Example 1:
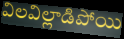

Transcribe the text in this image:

విలవిల్లాడిపోయి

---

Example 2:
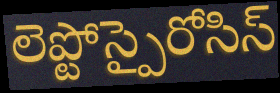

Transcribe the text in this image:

లెప్టోస్పైరోసిస్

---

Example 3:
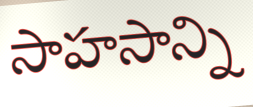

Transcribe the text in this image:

సాహసాన్ని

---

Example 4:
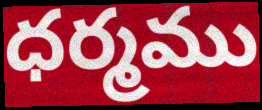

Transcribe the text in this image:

ధర్మము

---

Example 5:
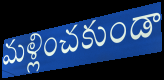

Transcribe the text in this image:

మళ్లించకుండా